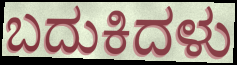
ಬದುಕಿದಳು